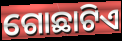
ଗୋଛାଟିଏ